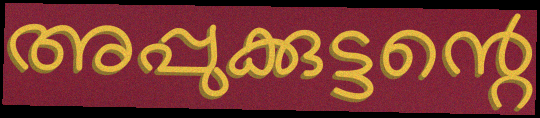
അപ്പുക്കുട്ടന്റെ